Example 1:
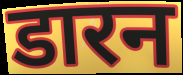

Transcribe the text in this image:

डारन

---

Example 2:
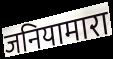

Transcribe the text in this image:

जनियामारा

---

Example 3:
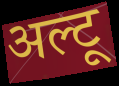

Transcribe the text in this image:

अल्टू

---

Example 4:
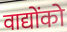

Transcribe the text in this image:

वाद्योंको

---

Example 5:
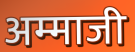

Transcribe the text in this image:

अम्माजी